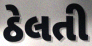
ઠેલતી